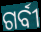
ଗର୍ବୀ